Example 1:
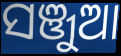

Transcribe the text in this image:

ସଞ୍ଜୁଆ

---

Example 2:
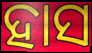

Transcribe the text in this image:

ହାସ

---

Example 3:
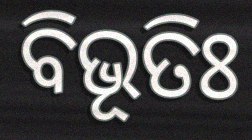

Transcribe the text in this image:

ବିଭୂତିଃ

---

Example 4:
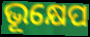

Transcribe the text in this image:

ଭୂକ୍ଷେପ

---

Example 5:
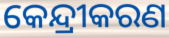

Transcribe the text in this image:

କେନ୍ଦ୍ରୀକରଣ